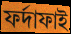
ফর্দাফাই